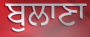
ਬੁਲਾਣਾ